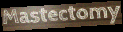
Mastectomy